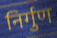
निर्गुण